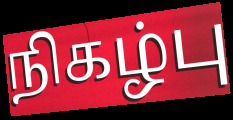
நிகழ்பு